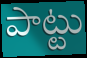
పాట్టు